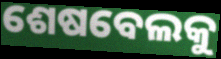
ଶେଷବେଲକୁ